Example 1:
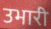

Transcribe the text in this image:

उभारी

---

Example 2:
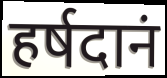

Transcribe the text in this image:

हर्षदानं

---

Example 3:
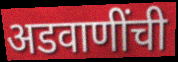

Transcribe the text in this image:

अडवाणींची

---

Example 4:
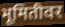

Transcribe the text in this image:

भूमितीवर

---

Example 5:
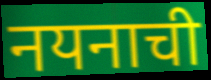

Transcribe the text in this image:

नयनाची